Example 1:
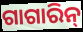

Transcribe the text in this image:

ଗାଗାରିନ୍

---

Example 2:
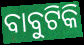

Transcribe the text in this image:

ବାବୁଟିକି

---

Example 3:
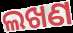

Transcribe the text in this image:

ଲଖଣ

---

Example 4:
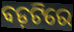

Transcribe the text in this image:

ବଡ଼ଟିରେ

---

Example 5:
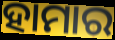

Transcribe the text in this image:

ହାମାର